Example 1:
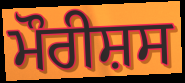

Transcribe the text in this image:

ਮੌਰੀਸ਼ਸ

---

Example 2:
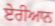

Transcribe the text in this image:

ਏਰੀਆਨ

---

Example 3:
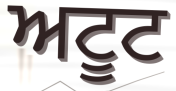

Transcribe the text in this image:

ਅਟੂਟ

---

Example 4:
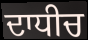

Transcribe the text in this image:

ਦਾਧੀਚ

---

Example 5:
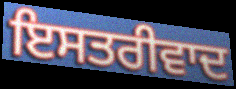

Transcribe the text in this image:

ਇਸਤਰੀਵਾਦ